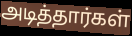
அடித்தார்கள்